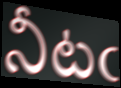
నీటఁ